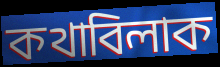
কথাবিলাক